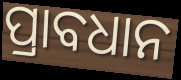
ପ୍ରାବଧାନ